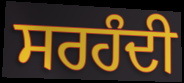
ਸਰਹੰਦੀ